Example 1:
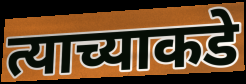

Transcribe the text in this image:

त्याच्याकडे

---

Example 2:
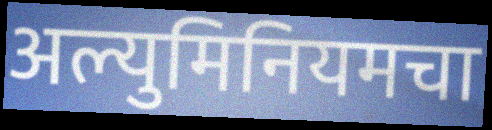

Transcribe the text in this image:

अल्युमिनियमचा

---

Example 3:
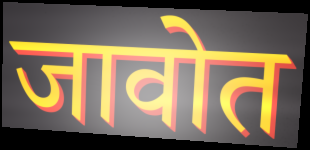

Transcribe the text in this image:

जावोत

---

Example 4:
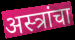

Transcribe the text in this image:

अस्त्रांचा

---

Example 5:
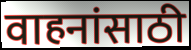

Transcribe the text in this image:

वाहनांसाठी